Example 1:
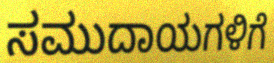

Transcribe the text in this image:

ಸಮುದಾಯಗಳಿಗೆ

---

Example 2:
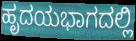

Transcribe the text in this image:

ಹೃದಯಭಾಗದಲ್ಲಿ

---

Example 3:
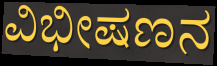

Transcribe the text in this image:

ವಿಭೀಷಣನ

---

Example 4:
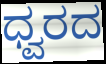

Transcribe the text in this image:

ಧ್ವರದ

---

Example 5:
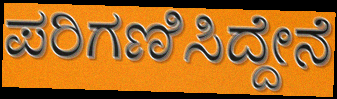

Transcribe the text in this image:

ಪರಿಗಣಿಸಿದ್ದೇನೆ